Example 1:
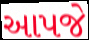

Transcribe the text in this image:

આપજે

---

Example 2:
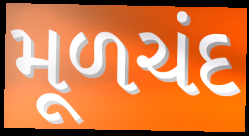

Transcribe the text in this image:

મૂળચંદ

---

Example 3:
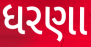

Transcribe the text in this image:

ધરણા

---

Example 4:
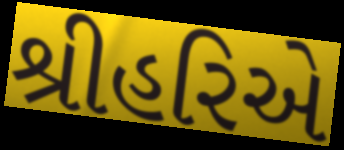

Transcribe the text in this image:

શ્રીહરિએ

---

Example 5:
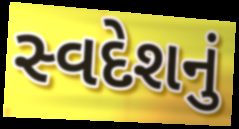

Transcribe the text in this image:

સ્વદેશનું